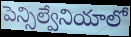
పెన్సిల్వేనియాలో